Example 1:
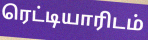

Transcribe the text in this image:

ரெட்டியாரிடம்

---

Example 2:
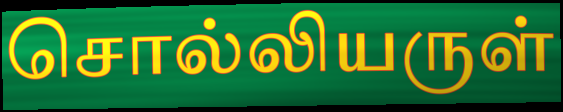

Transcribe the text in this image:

சொல்லியருள்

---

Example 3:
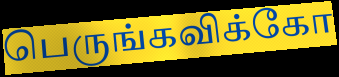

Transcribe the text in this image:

பெருங்கவிக்கோ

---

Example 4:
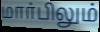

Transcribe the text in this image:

மார்பிலும்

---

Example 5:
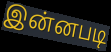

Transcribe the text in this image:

இன்னபடி